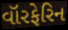
વૉરફેરિન